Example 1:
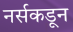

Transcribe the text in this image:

नर्सकडून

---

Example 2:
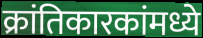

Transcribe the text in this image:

क्रांतिकारकांमध्ये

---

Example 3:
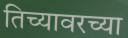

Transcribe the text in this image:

तिच्यावरच्या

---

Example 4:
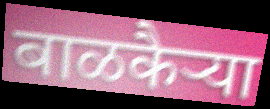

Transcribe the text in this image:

बाळकैऱ्या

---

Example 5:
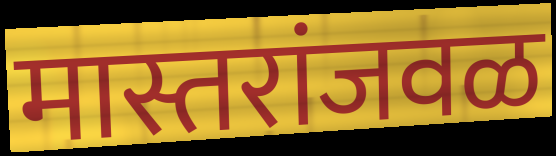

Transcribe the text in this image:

मास्तरांजवळ